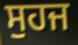
ਸੁਹਜ